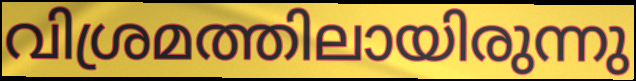
വിശ്രമത്തിലായിരുന്നു